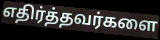
எதிர்த்தவர்களை